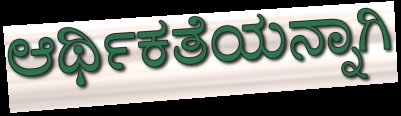
ಆರ್ಥಿಕತೆಯನ್ನಾಗಿ